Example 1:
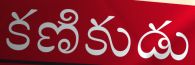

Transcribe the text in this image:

కణికుడు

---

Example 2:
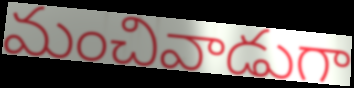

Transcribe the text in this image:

మంచివాడుగా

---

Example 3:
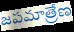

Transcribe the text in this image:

జపమాత్రేణ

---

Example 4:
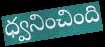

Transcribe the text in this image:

ధ్వనించింది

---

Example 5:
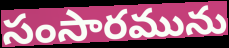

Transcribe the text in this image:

సంసారమును